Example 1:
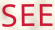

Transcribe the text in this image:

SEE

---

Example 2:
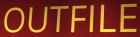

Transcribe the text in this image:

OUTFILE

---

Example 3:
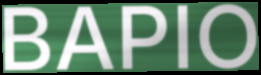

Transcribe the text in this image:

BAPIO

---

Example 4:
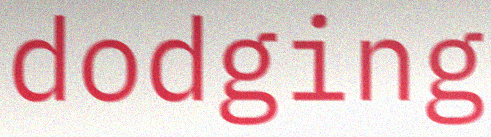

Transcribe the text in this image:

dodging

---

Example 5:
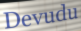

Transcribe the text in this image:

Devudu